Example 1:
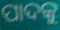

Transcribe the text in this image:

ପାଦକୁ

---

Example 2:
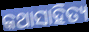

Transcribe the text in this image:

କଥାସାହିତ୍ୟ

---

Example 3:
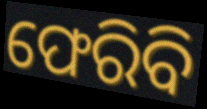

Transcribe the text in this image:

ଫେରିବି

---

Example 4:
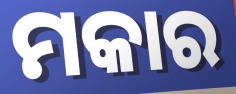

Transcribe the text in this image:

ମକାର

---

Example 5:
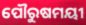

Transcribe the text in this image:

ପୌରୁଷମୟୀ